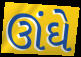
ઊંઘે